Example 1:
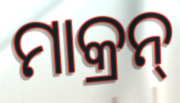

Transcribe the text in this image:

ମାକ୍ରନ୍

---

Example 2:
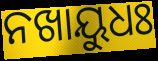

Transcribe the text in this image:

ନଖାୟୁଧଃ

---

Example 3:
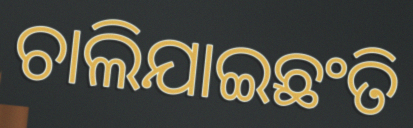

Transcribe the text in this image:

ଚାଲିଯାଇଛଂତି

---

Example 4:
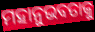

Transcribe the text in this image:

ମହାନୁଭବତାକୁ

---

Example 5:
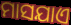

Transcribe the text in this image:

ମାସଯାଏ